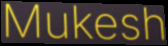
Mukesh